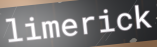
limerick